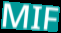
MIF